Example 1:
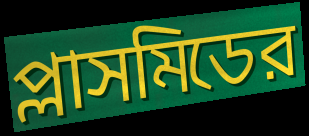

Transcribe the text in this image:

প্লাসমিডের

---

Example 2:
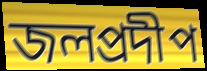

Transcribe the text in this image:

জলপ্রদীপ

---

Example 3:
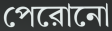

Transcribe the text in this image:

পেরোনো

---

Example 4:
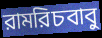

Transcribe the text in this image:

রামরিচবাবু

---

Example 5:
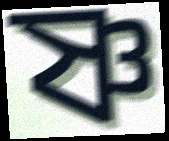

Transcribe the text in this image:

ষ্ণ